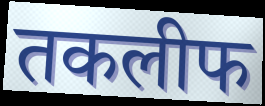
तकलीफ